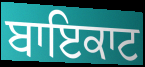
ਬਾਇਕਾਟ